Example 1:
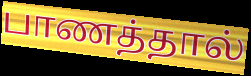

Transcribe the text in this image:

பாணத்தால்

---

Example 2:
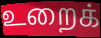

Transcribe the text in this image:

உறைக்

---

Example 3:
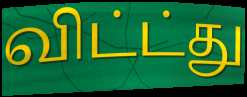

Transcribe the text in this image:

விட்ட்து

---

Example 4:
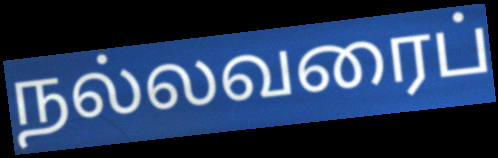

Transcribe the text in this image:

நல்லவரைப்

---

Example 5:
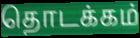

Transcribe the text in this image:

தொடக்கம்